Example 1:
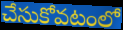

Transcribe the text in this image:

చేసుకోవటంలో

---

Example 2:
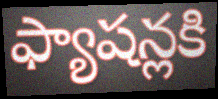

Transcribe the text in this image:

ఫ్యాషన్లకి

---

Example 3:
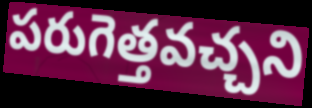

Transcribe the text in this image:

పరుగెత్తవచ్చని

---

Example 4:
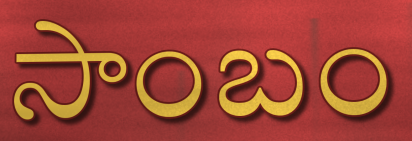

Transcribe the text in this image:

సాంబం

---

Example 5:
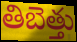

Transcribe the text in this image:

తిబెత్తు